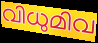
വിധുമിവ